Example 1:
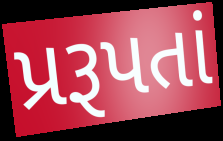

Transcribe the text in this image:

પ્રરૂપતાં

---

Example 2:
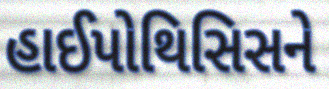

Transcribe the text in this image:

હાઈપોથિસિસને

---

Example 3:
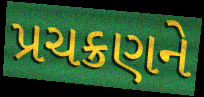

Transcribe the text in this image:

પ્રચક્રણને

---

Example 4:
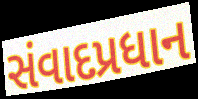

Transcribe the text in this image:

સંવાદપ્રધાન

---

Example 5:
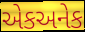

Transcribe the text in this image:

એકઅનેક